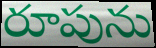
రూపును